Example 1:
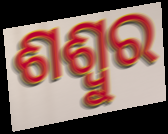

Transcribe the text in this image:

ଶଶ୍ୱୁର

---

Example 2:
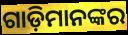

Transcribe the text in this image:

ଗାଡ଼ିମାନଙ୍କର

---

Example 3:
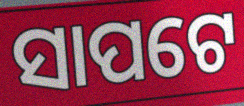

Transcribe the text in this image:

ସାପଟେ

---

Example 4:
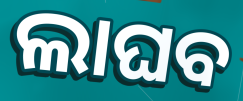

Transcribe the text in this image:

ଲାଘବ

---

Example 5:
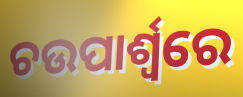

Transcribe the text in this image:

ଚଉପାର୍ଶ୍ୱରେ